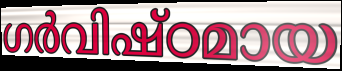
ഗർവിഷ്ഠമായ